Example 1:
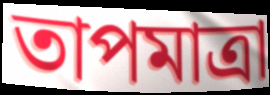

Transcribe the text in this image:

তাপমাত্রা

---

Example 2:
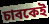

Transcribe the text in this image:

চাবকেই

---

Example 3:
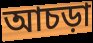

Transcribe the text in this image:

আচড়া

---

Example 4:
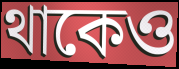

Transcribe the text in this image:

থাকেও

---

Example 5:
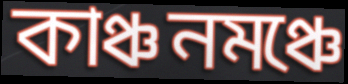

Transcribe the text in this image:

কাঞ্চনমঞ্চে